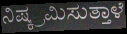
ನಿಷ್ಕ್ರಮಿಸುತ್ತಾಳೆ